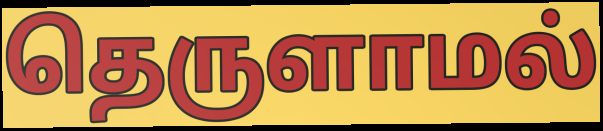
தெருளாமல்